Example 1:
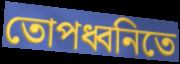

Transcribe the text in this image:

তোপধ্বনিতে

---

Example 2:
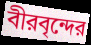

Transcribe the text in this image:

বীরবৃন্দের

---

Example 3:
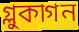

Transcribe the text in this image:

গ্লুকাগন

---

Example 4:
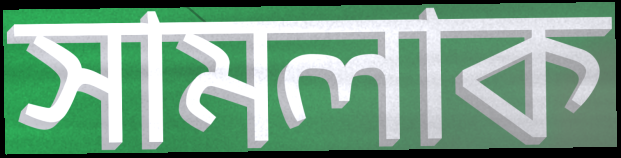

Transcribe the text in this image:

সামলাক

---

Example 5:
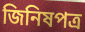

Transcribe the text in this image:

জিনিষপত্র